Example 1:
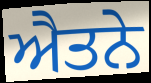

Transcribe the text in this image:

ਐਤਨੇ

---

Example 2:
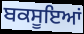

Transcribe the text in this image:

ਬਕਸੂਇਆਂ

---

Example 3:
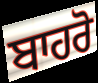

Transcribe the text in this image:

ਬਾਹਰੋ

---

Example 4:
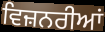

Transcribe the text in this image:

ਵਿਜ਼ਨਰੀਆਂ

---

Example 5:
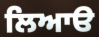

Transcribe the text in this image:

ਲਿਆੳ